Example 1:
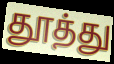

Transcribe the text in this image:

தூத்து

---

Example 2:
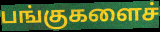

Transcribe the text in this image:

பங்குகளைச்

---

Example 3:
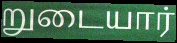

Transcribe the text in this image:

றுடையார்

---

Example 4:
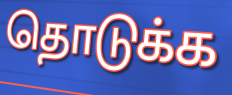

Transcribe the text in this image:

தொடுக்க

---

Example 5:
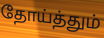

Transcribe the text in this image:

தோய்த்தும்